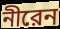
নীরেন